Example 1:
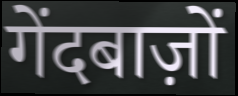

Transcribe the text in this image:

गेंदबाज़ों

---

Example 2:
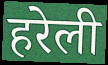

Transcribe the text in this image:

हरेली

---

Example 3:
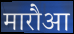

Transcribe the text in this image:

मारौआ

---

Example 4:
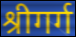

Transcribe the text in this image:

श्रीगर्ग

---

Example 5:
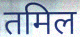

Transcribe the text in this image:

तमिल